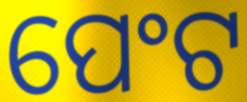
ପେଂଟ